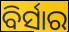
ବିର୍ସାର